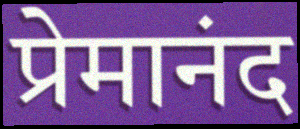
प्रेमानंद